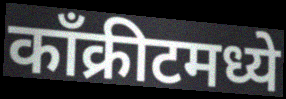
काँक्रीटमध्ये